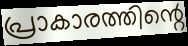
പ്രാകാരത്തിന്റെ